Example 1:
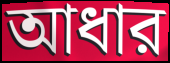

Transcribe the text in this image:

আধার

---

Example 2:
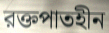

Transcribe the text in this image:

রক্তপাতহীন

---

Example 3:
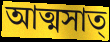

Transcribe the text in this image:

আত্মসাত্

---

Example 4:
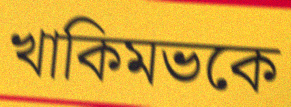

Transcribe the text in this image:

খাকিমভকে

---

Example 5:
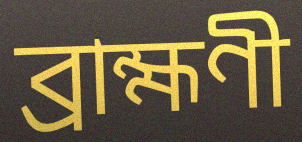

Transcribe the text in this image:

ব্রাহ্মণী